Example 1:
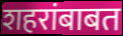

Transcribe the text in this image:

शहरांबाबत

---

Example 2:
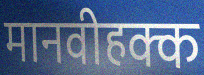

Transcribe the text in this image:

मानवीहक्क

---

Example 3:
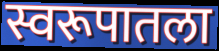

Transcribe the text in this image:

स्वरूपातला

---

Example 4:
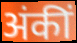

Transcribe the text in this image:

अंकीं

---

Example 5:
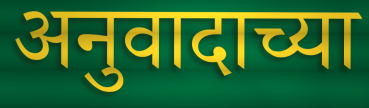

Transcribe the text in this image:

अनुवादाच्या